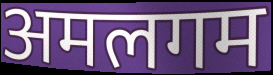
अमलगम